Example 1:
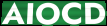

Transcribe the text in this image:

AIOCD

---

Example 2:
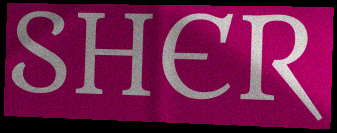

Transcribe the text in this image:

SHER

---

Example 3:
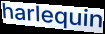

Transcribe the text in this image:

harlequin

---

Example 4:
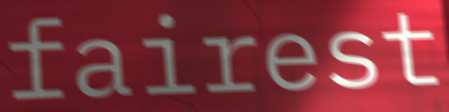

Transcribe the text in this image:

fairest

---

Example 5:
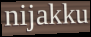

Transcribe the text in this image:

nijakku